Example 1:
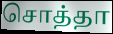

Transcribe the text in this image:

சொத்தா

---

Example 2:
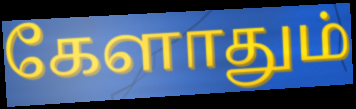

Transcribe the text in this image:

கேளாதும்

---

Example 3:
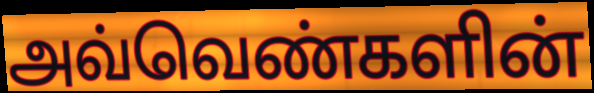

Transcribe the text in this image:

அவ்வெண்களின்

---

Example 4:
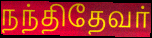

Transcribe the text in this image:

நந்திதேவர்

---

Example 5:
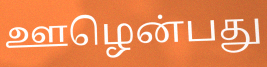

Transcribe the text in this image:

ஊழென்பது